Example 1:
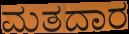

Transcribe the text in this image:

ಮತದಾರ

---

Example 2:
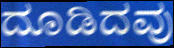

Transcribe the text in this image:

ದೂಡಿದವು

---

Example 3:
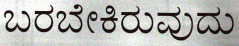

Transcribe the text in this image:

ಬರಬೇಕಿರುವುದು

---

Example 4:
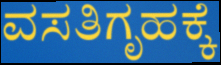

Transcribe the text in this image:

ವಸತಿಗೃಹಕ್ಕೆ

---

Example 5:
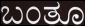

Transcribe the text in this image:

ಬಂತೂ